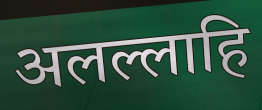
अलल्लाहि